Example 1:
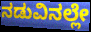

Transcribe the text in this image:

ನಡುವಿನಲ್ಲೇ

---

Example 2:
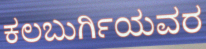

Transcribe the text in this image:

ಕಲಬುರ್ಗಿಯವರ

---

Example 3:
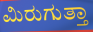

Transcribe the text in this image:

ಮಿರುಗುತ್ತಾ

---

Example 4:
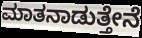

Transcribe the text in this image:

ಮಾತನಾಡುತ್ತೇನೆ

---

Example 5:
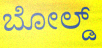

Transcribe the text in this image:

ಬೋಲ್ಡ್